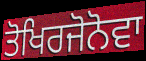
ਤੋਖਿਰਜੋਨੋਵਾ